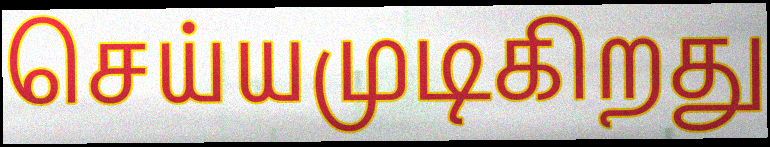
செய்யமுடிகிறது